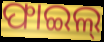
ଫାଇଲ୍